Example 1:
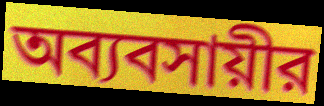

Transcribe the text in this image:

অব্যবসায়ীর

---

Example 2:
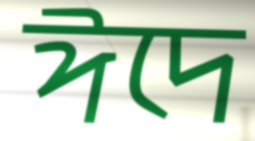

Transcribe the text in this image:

ঈদে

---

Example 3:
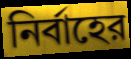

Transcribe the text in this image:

নির্বাহের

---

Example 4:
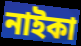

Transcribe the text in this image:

নাইকা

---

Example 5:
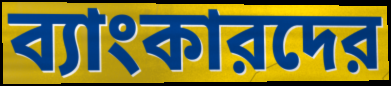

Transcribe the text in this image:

ব্যাংকারদের